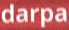
darpa